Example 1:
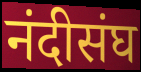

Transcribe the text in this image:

नंदीसंघ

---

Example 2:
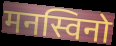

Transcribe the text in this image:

मनस्विनो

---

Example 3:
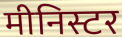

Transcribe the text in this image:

मीनिस्टर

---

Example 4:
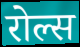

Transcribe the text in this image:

रोल्स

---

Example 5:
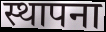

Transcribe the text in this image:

स्‍थापना